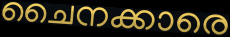
ചൈനക്കാരെ